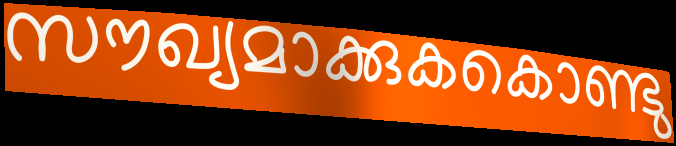
സൗഖ്യമാക്കുകകൊണ്ടു